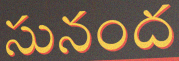
సునంద